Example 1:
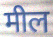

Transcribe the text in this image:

मील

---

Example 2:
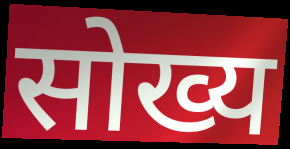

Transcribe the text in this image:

सोख्य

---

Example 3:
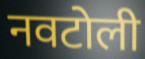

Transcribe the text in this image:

नवटोली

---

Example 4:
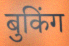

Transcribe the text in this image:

बुकिंग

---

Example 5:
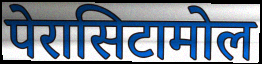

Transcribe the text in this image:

पेरासिटामोल